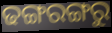
ଢଙ୍ଗରଙ୍ଗରୁ